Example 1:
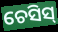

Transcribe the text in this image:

ଚେସିସ୍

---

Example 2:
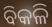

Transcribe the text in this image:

ବିକଳି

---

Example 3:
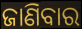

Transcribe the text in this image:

ଜାଣିବାର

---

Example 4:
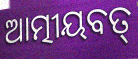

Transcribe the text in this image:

ଆତ୍ମୀୟବତ୍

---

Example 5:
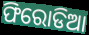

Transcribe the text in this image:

ଫିରୋଡିଆ